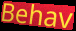
Behav